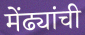
मेंढ्यांची